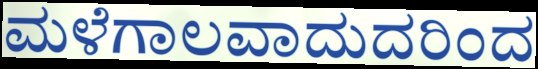
ಮಳೆಗಾಲವಾದುದರಿಂದ